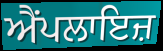
ਐਂਪਲਾਇਜ਼